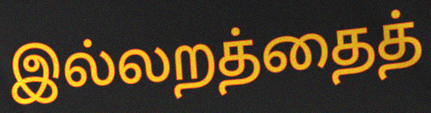
இல்லறத்தைத்